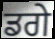
ਡਗੇ